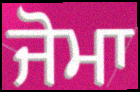
ਜੋਮਾ